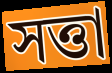
সত্তা